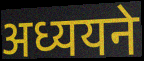
अध्ययने